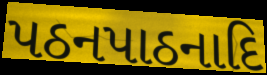
પઠનપાઠનાદિ